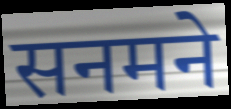
सनमने